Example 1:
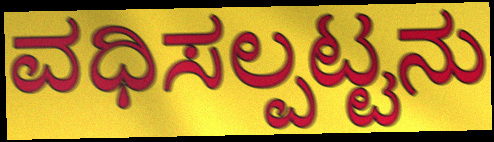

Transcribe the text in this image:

ವಧಿಸಲ್ಪಟ್ಟನು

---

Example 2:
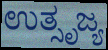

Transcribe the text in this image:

ಉತ್ಸೃಜ್ಯ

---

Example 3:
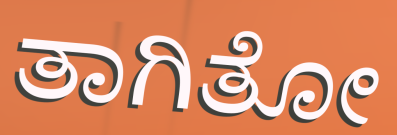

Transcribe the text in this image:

ತಾಗಿತೋ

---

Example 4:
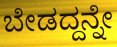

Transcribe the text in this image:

ಬೇಡದ್ದನ್ನೇ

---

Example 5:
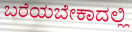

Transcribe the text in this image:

ಬರೆಯಬೇಕಾದಲ್ಲಿ